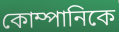
কোম্পানিকে